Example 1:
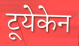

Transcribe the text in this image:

टूयेकेन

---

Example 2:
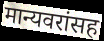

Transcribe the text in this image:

मान्यवरांसह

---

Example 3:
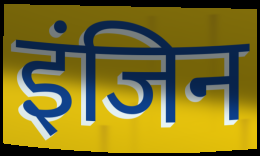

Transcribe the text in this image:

इंजिन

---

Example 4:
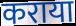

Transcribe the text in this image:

कराया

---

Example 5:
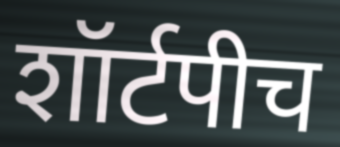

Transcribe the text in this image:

शॉर्टपीच